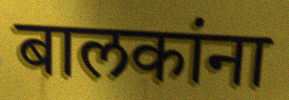
बालकांना